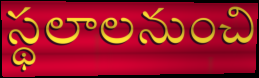
స్థలాలనుంచి